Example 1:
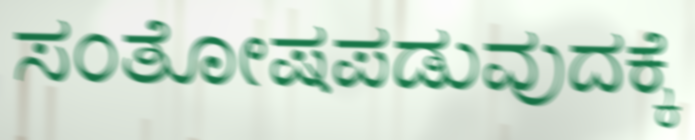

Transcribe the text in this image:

ಸಂತೋಷಪಡುವುದಕ್ಕೆ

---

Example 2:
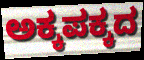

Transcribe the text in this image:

ಅಕ್ಕಪಕ್ಕದ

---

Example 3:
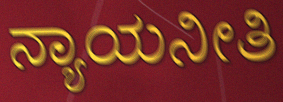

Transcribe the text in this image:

ನ್ಯಾಯನೀತಿ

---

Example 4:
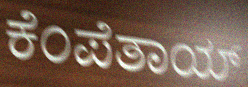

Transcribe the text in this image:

ಕೆಂಪೆತಾಯ್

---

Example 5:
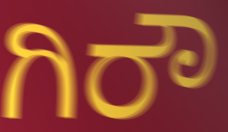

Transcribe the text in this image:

ಗಿರೌ